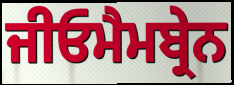
ਜੀਓਮੈਮਬ੍ਰੇਨ